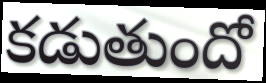
కడుతుందో